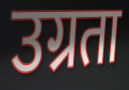
उग्रता